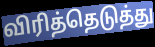
விரித்தெடுத்து